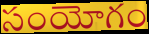
సంయోగం